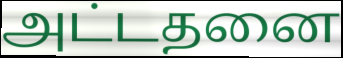
அட்டதனை